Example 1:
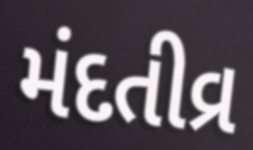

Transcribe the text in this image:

મંદતીવ્ર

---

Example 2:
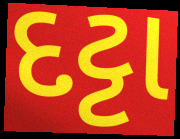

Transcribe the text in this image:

દટ્ટા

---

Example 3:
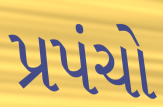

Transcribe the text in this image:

પ્રપંચો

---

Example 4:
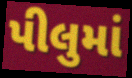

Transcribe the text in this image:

પીલુમાં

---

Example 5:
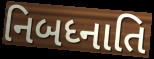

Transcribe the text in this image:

નિબધ્નાતિ